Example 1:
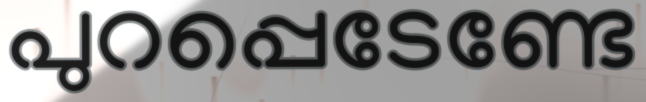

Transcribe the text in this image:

പുറപ്പെടേണ്ടേ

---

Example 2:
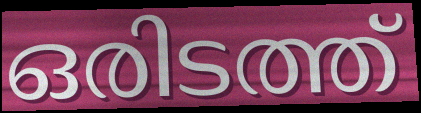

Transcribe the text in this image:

ഒരിടത്ത്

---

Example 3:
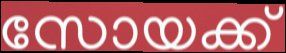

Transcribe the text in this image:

സോയക്ക്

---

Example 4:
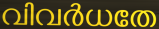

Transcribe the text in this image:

വിവർധതേ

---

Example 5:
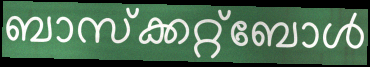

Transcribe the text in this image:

ബാസ്ക്കറ്റ്ബോൾ